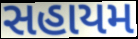
સહાયમ